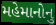
મહેમાનોનુ